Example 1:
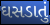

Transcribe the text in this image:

ઘસડાતું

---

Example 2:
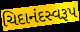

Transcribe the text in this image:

ચિદાનંદસ્વરૂપ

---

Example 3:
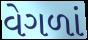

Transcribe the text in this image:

વેગળાં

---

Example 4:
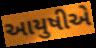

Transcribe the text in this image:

આયુષીએ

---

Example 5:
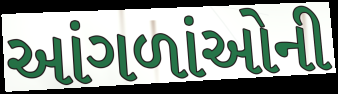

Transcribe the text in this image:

આંગળાંઓની